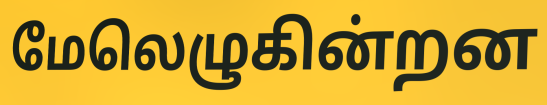
மேலெழுகின்றன